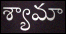
శ్యామా